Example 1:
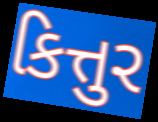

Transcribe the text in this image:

કિત્તુર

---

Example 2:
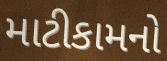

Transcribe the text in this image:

માટીકામનો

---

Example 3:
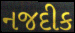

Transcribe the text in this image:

નજદીક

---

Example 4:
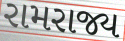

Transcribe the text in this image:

રામરાજ્ય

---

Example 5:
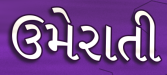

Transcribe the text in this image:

ઉમેરાતી